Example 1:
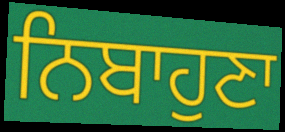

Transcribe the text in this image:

ਨਿਬਾਹੁਣਾ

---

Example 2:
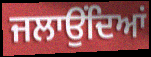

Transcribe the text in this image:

ਜਲਾਉਂਦਿਆਂ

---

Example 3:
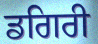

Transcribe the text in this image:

ਡਗਿਰੀ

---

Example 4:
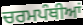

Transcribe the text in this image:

ਚਰਮਪੰਥੀਆਂ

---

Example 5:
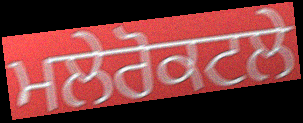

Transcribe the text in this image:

ਮਲੇਰੋਕਟਲੇ